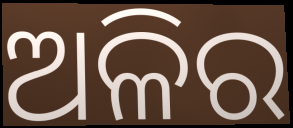
ଅଳିର